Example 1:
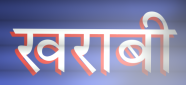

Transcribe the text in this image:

खराबी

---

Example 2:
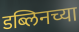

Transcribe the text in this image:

डब्लिनच्या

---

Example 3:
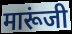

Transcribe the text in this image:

मारूंजी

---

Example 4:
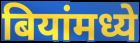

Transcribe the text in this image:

बियांमध्ये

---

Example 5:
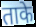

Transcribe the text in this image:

ताके